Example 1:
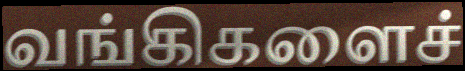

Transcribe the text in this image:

வங்கிகளைச்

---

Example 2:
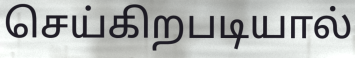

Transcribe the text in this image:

செய்கிறபடியால்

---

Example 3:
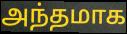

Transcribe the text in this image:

அந்தமாக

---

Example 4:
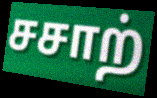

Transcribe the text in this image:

சசாற்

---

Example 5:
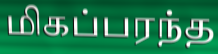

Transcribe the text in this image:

மிகப்பரந்த